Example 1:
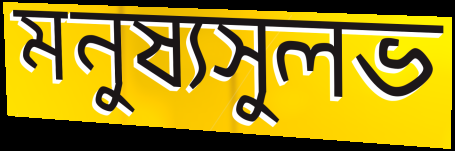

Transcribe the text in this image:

মনুষ্যসুলভ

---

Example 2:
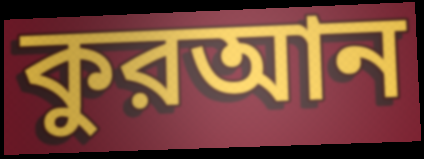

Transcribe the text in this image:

কুরআন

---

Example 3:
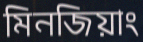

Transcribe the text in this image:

মিনজিয়াং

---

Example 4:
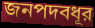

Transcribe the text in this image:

জনপদবধূর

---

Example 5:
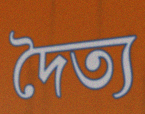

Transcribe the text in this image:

দৈত্য